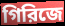
গিরিজে